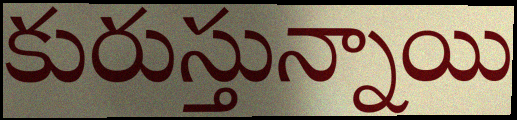
కురుస్తున్నాయి